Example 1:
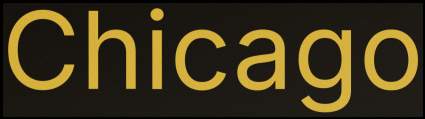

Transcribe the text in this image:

Chicago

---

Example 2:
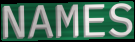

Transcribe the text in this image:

NAMES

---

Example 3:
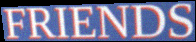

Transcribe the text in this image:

FRIENDS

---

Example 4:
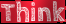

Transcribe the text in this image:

Think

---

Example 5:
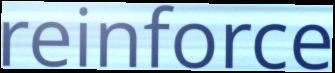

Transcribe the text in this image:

reinforce